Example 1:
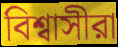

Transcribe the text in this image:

বিশ্বাসীরা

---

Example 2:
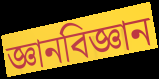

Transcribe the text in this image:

জ্ঞানবিজ্ঞান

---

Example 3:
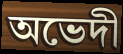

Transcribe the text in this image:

অভেদী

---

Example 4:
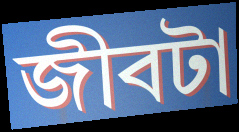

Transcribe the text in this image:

জীবটা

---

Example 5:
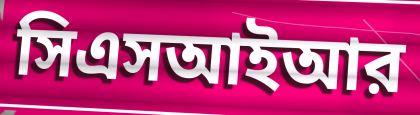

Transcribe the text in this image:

সিএসআইআর